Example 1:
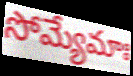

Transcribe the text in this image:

సోమ్యేమాః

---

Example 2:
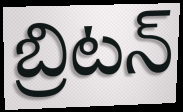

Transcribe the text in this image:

బ్రిటన్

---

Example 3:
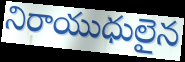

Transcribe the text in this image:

నిరాయుధులైన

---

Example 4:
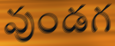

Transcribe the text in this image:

వుండగ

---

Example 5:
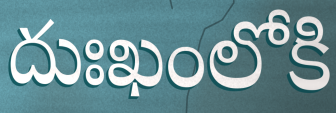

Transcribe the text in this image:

దుఃఖంలోకి